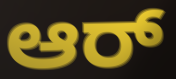
ಆರ್